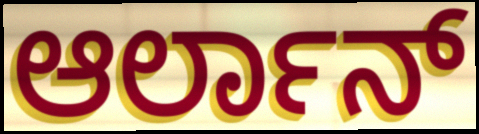
ಆರ್ಲಾನ್